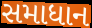
સમાધાન